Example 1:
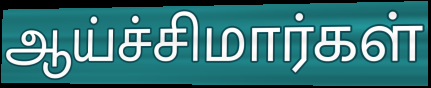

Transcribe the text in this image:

ஆய்ச்சிமார்கள்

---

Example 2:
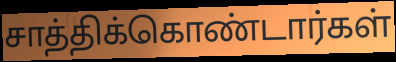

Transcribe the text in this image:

சாத்திக்கொண்டார்கள்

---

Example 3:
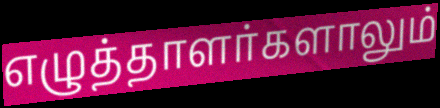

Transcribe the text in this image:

எழுத்தாளர்களாலும்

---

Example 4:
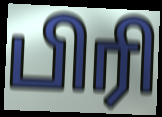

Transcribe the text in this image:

பிரி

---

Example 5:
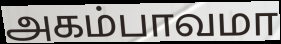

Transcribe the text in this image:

அகம்பாவமா